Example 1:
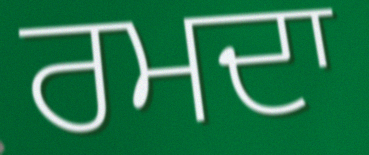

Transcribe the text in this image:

ਰਮਦਾ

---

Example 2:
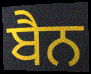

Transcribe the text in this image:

ਬੈਨ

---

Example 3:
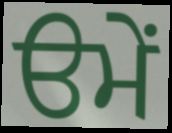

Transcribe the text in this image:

ੳਮੇਂ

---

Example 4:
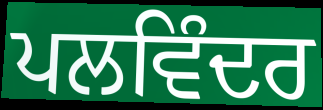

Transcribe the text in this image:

ਪਲਵਿੰਦਰ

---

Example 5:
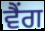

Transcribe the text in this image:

ਵੈਂਗ